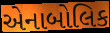
એનાબોલિક